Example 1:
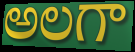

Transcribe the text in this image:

అలగా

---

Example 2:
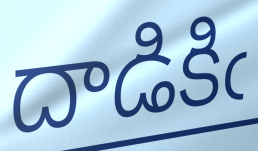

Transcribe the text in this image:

దాడికిఁ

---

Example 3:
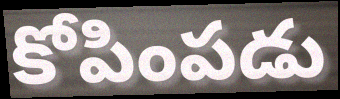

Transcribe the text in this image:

కోపింపడు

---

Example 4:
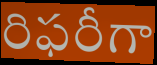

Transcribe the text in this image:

రిఫరీగా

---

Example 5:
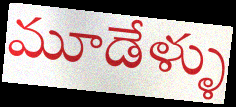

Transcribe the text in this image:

మూడేళ్ళు